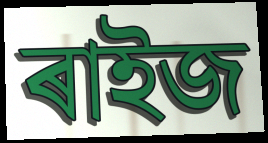
ৰাইজ